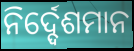
ନିର୍ଦ୍ଦେଶମାନ